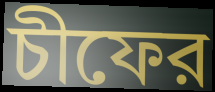
চীফের